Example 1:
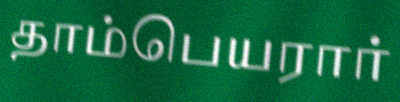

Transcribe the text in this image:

தாம்பெயரார்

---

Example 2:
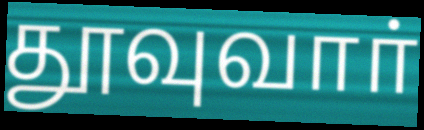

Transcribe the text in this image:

தூவுவார்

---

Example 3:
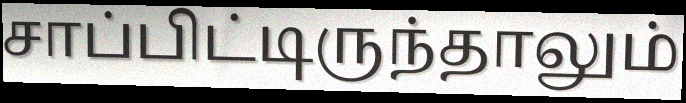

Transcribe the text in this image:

சாப்பிட்டிருந்தாலும்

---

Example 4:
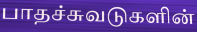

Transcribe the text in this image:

பாதச்சுவடுகளின்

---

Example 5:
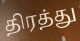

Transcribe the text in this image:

திரத்து